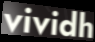
vividh